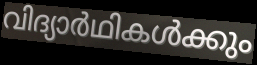
വിദ്യാർഥികൾക്കും